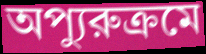
অপ্যুরুক্রমে